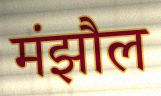
मंझौल